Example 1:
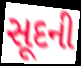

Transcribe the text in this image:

સૂદની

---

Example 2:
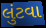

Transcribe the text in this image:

લુંટવા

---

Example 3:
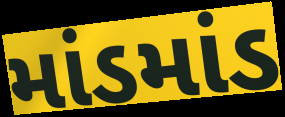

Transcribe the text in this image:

માંડમાંડ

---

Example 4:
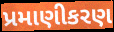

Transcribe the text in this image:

પ્રમાણીકરણ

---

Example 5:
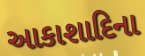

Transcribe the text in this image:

આકાશાદિના